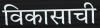
विकासाची